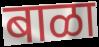
बाळा